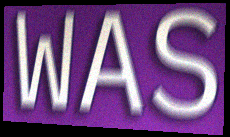
WAS